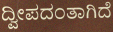
ದ್ವೀಪದಂತಾಗಿದೆ